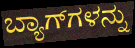
ಬ್ಯಾಗ್‌ಗಳನ್ನು